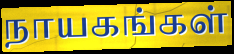
நாயகங்கள்